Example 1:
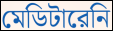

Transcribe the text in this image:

মেডিটারেনি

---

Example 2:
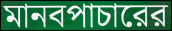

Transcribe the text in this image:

মানবপাচারের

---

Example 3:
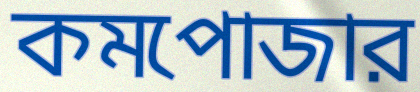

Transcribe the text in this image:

কমপোজার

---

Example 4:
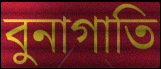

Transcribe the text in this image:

বুনাগাতি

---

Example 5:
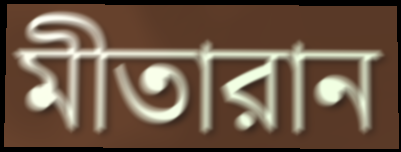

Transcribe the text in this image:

মীতারান